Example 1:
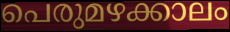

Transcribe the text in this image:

പെരുമഴക്കാലം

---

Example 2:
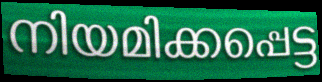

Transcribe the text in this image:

നിയമിക്കപ്പെട്ട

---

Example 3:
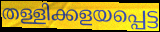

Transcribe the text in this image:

തള്ളിക്കളയപ്പെട്ട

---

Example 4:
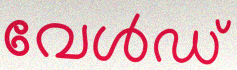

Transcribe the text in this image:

വേൾഡ്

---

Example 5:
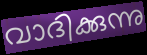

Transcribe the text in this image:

വാദിക്കുന്നു